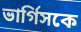
ভার্গিসকে